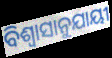
ବିଶ୍ୱାସାନୁଯାୟୀ